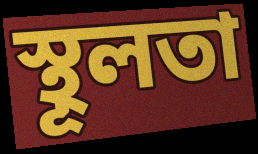
স্থূলতা